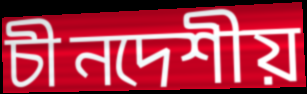
চীনদেশীয়